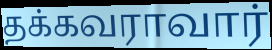
தக்கவராவார்